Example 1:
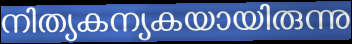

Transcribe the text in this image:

നിത്യകന്യകയായിരുന്നു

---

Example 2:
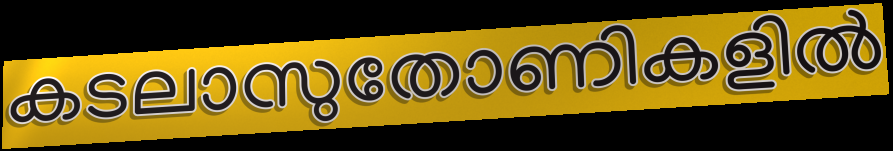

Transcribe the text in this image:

കടലാസുതോണികളിൽ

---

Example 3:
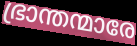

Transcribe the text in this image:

ഭ്രാന്തന്മാരേ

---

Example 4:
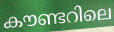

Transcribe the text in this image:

കൗണ്ടറിലെ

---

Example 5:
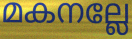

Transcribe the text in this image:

മകനല്ലേ